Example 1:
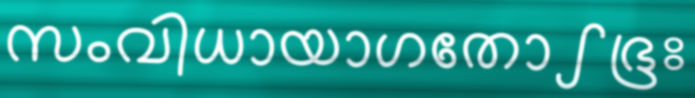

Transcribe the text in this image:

സംവിധായാഗതോഽഭൂഃ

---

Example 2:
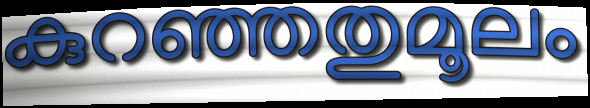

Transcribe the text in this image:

കുറഞ്ഞതുമൂലം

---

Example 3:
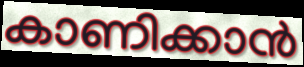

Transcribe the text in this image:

കാണിക്കാൻ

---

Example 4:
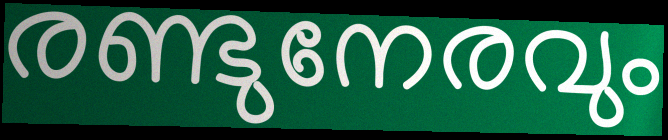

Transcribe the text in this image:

രണ്ടുനേരവും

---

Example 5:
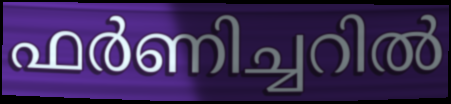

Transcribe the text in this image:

ഫർണിച്ചറിൽ